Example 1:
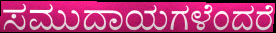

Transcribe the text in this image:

ಸಮುದಾಯಗಳೆಂದರೆ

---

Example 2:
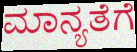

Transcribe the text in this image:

ಮಾನ್ಯತೆಗೆ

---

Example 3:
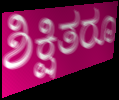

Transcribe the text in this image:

ಶಿಕ್ಷಿತರೂ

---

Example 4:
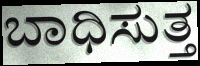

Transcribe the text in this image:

ಬಾಧಿಸುತ್ತ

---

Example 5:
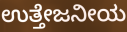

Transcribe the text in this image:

ಉತ್ತೇಜನೀಯ